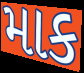
માક